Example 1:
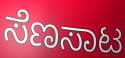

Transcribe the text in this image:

ಸೆಣಸಾಟ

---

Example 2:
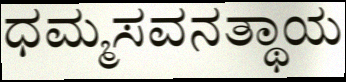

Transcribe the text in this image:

ಧಮ್ಮಸವನತ್ಥಾಯ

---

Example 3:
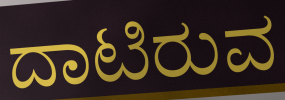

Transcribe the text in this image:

ದಾಟಿರುವ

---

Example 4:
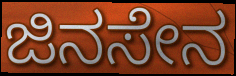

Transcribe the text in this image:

ಜಿನಸೇನ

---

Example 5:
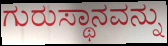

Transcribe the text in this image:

ಗುರುಸ್ಥಾನವನ್ನು